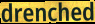
drenched